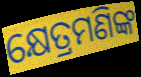
କ୍ଷେତ୍ରମଣିଙ୍କ